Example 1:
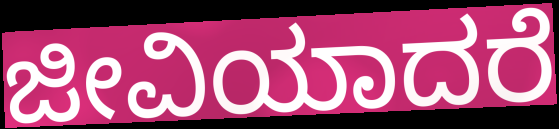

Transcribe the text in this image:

ಜೀವಿಯಾದರೆ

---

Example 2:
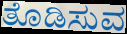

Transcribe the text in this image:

ತೊಡಿಸುವ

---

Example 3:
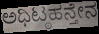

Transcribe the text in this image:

ಅಧಿಟ್ಠಹನ್ತೇನ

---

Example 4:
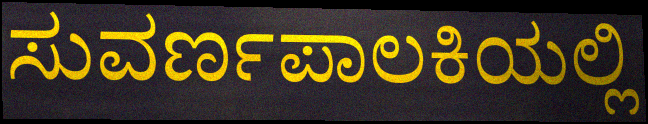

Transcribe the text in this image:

ಸುವರ್ಣಪಾಲಕಿಯಲ್ಲಿ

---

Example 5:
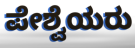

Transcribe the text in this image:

ಪೇಶ್ವೆಯರು